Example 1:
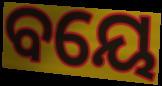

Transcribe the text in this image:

ବୟେ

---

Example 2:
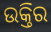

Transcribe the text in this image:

ଉକ୍ତିର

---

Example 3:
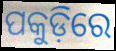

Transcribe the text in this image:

ପକୁଡ଼ିରେ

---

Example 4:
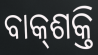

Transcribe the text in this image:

ବାକ୍‍ଶକ୍ତି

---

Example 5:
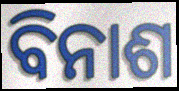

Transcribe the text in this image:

ବିନାଶ